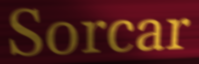
Sorcar